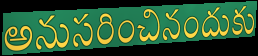
అనుసరించినందుకు